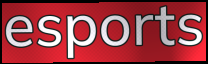
esports